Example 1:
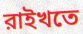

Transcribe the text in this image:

রাইখতে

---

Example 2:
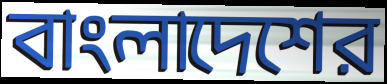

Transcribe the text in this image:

বাংলাদেশের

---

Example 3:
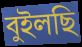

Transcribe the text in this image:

বুইলছি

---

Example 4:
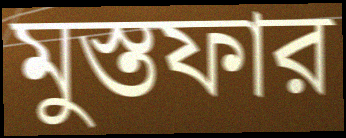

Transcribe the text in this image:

মুস্তফার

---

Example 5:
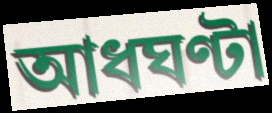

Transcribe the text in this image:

আধঘণ্টা